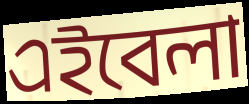
এইবেলা